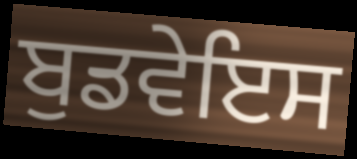
ਬੁਡਵੇਇਸ